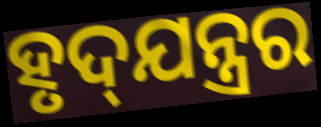
ହୃଦ୍‍ଯନ୍ତ୍ରର